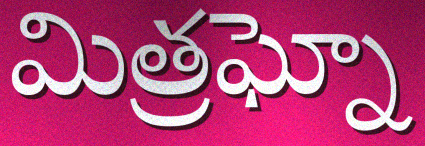
మిత్రఘ్నో